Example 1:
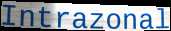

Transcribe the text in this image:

Intrazonal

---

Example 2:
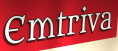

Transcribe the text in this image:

Emtriva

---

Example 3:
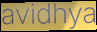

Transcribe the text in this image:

avidhya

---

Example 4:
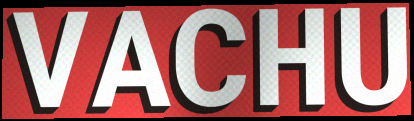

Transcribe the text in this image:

VACHU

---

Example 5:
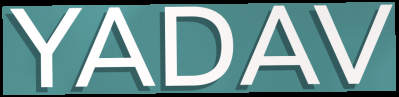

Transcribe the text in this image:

YADAV